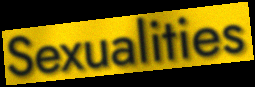
Sexualities